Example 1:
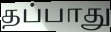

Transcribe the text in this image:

தப்பாது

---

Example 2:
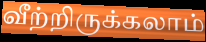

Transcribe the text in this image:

வீற்றிருக்கலாம்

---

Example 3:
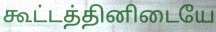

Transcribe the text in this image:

கூட்டத்தினிடையே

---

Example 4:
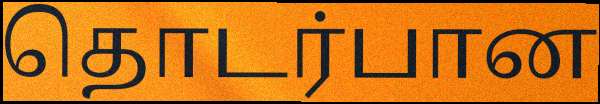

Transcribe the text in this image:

தொடர்பான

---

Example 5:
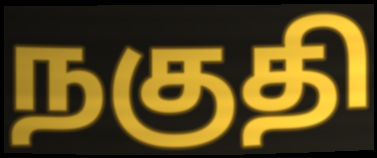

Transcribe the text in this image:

நகுதி